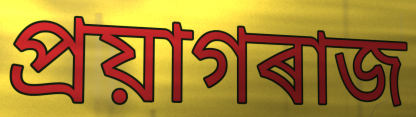
প্ৰয়াগৰাজ